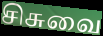
சிசுவை